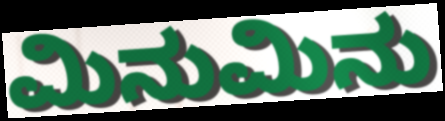
ಮಿನುಮಿನು